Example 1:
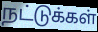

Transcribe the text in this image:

நட்டுக்கள்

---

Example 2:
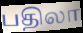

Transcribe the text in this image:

பதிலா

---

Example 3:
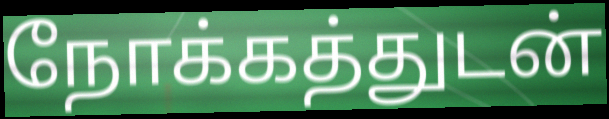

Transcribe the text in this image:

நோக்கத்துடன்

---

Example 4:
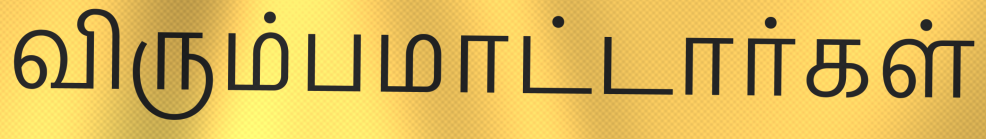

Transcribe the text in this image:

விரும்பமாட்டார்கள்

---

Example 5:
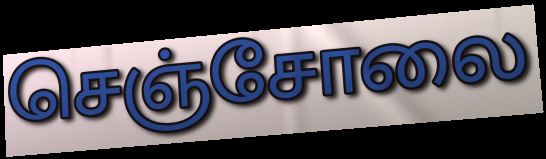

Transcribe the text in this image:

செஞ்சோலை